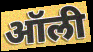
ऑली